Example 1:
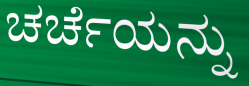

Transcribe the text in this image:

ಚರ್ಚೆಯನ್ನು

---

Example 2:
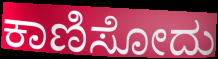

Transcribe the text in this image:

ಕಾಣಿಸೋದು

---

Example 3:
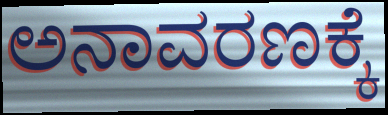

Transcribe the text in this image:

ಅನಾವರಣಕ್ಕೆ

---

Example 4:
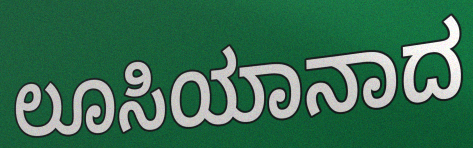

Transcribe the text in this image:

ಲೂಸಿಯಾನಾದ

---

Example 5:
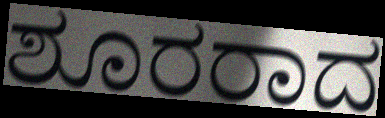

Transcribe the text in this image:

ಶೂರರಾದ